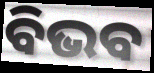
ବିଭବ